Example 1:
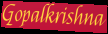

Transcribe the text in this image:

Gopalkrishna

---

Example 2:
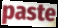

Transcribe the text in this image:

paste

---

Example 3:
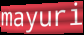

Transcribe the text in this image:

mayuri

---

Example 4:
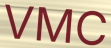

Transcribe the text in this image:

VMC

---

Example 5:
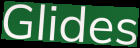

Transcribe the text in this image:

Glides